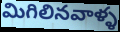
మిగిలినవాళ్ళ